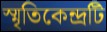
স্মৃতিকেন্দ্রটি